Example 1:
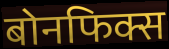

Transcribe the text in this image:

बोनफिक्स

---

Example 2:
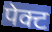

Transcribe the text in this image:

पेक्ट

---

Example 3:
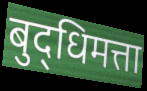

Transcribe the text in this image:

बुद्धिमत्ता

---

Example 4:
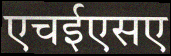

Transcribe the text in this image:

एचईएसए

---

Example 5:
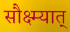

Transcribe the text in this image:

सौक्ष्म्यात्